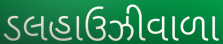
ડલહાઉઝીવાળા